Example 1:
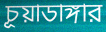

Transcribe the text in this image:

চূয়াডাঙ্গার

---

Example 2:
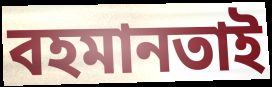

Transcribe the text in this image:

বহমানতাই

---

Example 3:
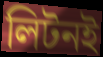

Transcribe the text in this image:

লিটনই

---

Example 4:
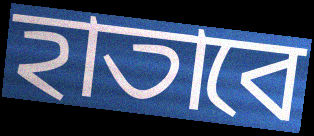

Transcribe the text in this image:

হাতাবে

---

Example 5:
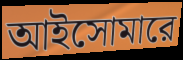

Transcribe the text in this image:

আইসোমারে